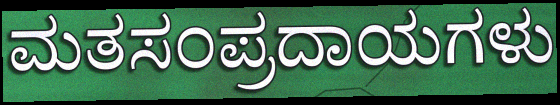
ಮತಸಂಪ್ರದಾಯಗಳು